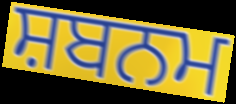
ਸ਼ਬਨਮ